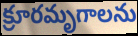
క్రూరమృగాలను